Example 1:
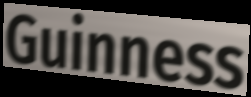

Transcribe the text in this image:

Guinness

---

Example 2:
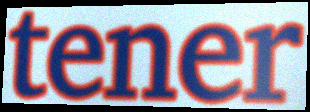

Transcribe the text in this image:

tener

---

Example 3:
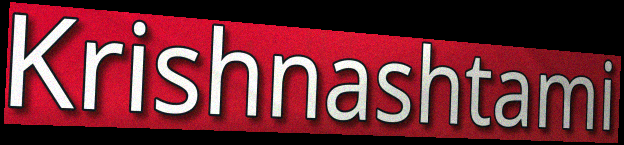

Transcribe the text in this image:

Krishnashtami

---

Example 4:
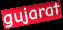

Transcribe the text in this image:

gujarat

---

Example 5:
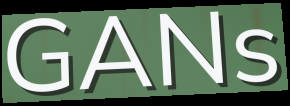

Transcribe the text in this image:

GANs